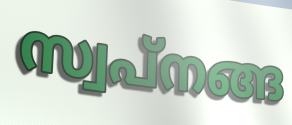
സ്വപ്നങ്ങ